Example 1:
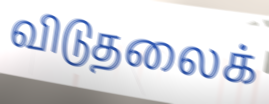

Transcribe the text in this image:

விடுதலைக்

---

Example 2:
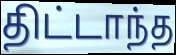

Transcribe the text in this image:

திட்டாந்த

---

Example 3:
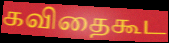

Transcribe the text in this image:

கவிதைகூட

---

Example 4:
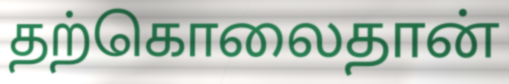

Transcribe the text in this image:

தற்கொலைதான்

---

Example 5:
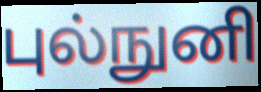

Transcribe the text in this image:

புல்நுனி